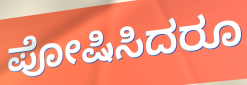
ಪೋಷಿಸಿದರೂ